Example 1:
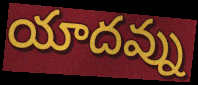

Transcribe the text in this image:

యాదవ్ను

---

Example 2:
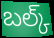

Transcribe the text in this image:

బల్క్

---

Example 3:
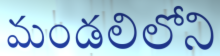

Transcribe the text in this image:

మండలిలోని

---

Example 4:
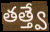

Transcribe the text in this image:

తత్త్వే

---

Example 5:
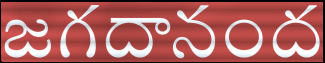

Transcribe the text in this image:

జగదానంద